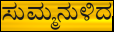
ಸುಮ್ಮನುಳಿದ